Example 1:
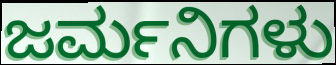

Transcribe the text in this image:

ಜರ್ಮನಿಗಳು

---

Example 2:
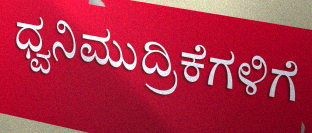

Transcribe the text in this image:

ಧ್ವನಿಮುದ್ರಿಕೆಗಳಿಗೆ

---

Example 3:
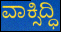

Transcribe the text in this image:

ವಾಕ್ಸಿದ್ಧಿ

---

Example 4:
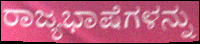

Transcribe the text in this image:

ರಾಜ್ಯಭಾಷೆಗಳನ್ನು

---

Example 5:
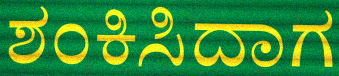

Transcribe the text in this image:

ಶಂಕಿಸಿದಾಗ